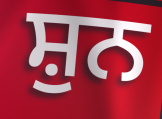
ਸ਼ੁਨ